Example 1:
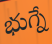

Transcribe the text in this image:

భుగ్నే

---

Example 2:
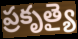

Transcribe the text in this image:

ప్రకృత్యై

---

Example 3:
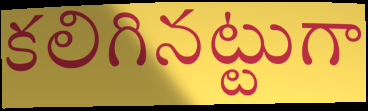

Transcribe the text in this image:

కలిగినట్టుగా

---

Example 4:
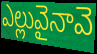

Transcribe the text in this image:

ఎల్లువైనావె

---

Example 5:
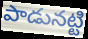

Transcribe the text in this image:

పాడునట్టి